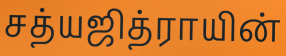
சத்யஜித்ராயின்